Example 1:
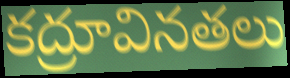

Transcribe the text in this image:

కద్రూవినతలు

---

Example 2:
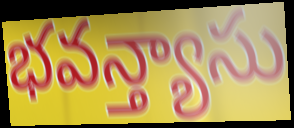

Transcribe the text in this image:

భవన్త్యాసు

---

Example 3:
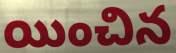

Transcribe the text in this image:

యించిన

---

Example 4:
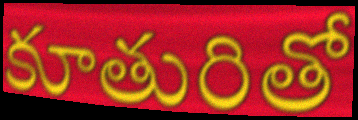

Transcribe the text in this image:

కూతురితో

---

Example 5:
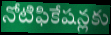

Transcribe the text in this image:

నోటిఫికేషన్లకు